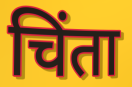
चिंता